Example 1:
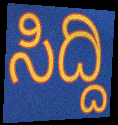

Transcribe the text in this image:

ಸಿದ್ದಿ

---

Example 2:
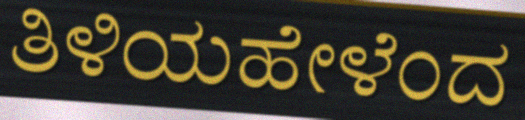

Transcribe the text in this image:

ತಿಳಿಯಹೇಳೆಂದ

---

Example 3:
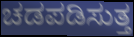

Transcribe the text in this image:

ಚಡಪಡಿಸುತ್ತ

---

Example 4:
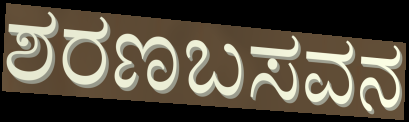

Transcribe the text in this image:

ಶರಣಬಸವನ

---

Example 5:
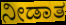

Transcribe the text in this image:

ನೀಡಾತ